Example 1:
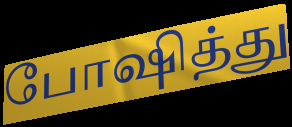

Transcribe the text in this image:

போஷித்து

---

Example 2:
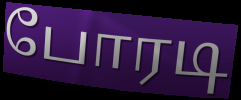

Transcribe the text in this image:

போரடி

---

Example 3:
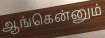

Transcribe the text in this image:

ஆங்கென்னும்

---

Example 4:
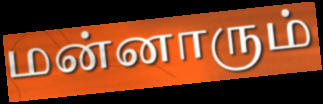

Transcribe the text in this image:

மன்னாரும்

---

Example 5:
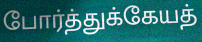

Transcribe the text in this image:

போர்த்துக்கேயத்